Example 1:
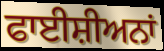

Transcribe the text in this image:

ਫਾਈਸ਼ੀਅਨਾਂ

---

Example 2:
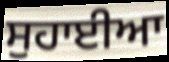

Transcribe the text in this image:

ਸੁਹਾਈਆ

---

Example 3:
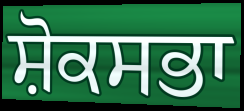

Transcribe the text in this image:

ਸ਼ੋਕਸਭਾ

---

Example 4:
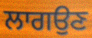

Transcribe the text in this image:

ਲਾਗਉਣ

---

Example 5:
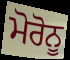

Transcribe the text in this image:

ਮੋਰੋਨੂ